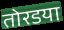
तोरडया